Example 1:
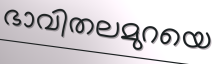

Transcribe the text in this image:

ഭാവിതലമുറയെ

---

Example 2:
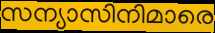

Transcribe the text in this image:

സന്യാസിനിമാരെ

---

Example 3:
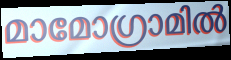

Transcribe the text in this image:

മാമോഗ്രാമിൽ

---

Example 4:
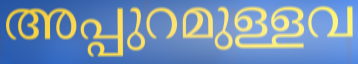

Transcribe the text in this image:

അപ്പുറമുള്ളവ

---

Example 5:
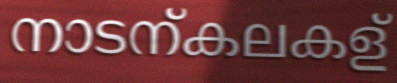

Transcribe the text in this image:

നാടന്കലകള്